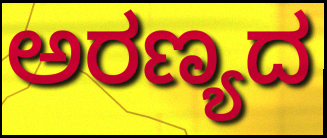
ಅರಣ್ಯದ